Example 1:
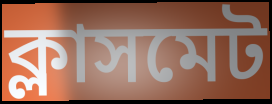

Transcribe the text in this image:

ক্লাসমেট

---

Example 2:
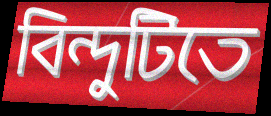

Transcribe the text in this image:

বিন্দুটিতে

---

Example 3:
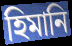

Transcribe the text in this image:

হিমানি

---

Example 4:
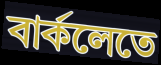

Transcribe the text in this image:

বার্কলেতে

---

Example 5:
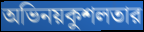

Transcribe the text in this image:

অভিনয়কুশলতার